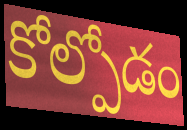
కోల్పోడం